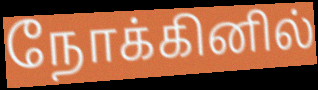
நோக்கினில்